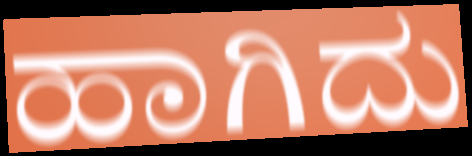
ಹಾಗಿದು